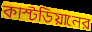
কাস্টডিয়ানের